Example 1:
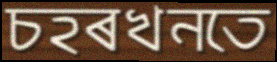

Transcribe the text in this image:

চহৰখনতে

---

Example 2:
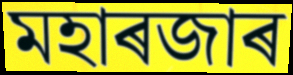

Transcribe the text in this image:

মহাৰজাৰ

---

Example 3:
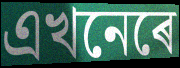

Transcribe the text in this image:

এখনেৰে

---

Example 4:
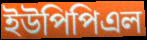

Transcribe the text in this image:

ইউপিপিএল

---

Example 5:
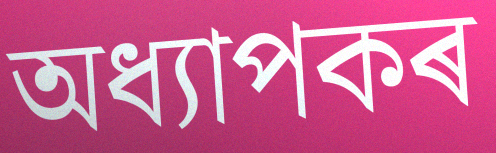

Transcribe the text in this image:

অধ্যাপকৰ